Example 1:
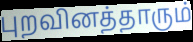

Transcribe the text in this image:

புறவினத்தாரும்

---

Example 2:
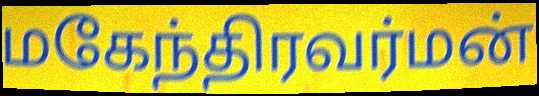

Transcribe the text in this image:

மகேந்திரவர்மன்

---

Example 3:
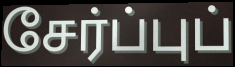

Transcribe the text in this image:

சேர்ப்புப்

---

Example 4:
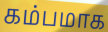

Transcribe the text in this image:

கம்பமாக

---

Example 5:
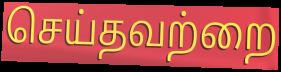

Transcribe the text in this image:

செய்தவற்றை